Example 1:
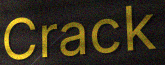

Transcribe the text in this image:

Crack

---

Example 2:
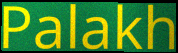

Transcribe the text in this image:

Palakh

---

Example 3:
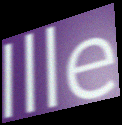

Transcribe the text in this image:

Ille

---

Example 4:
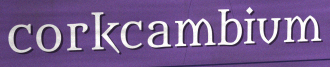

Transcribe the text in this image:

corkcambium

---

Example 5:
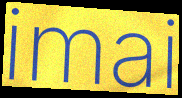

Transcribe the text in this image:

imai